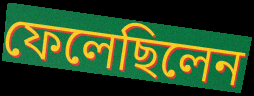
ফেলেছিলেন